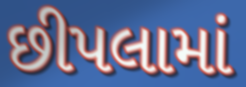
છીપલામાં